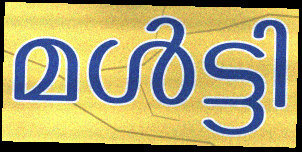
മൾട്ടി